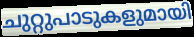
ചുറ്റുപാടുകളുമായി